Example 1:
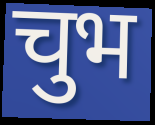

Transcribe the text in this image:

चुभ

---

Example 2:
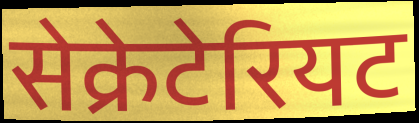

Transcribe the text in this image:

सेक्रेटेरियट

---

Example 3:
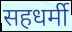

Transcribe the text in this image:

सहधर्मी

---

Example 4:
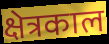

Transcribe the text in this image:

क्षेत्रकाल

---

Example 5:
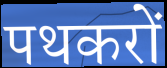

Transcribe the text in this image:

पथकरों